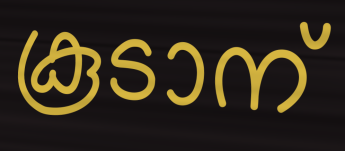
കൂടാന്